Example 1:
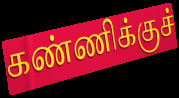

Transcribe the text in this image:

கண்ணிக்குச்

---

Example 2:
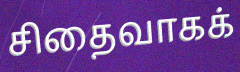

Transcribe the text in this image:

சிதைவாகக்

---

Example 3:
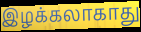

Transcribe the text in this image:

இழக்கலாகாது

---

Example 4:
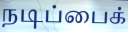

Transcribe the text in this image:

நடிப்பைக்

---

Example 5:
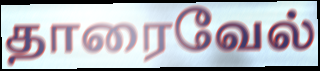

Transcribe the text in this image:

தாரைவேல்